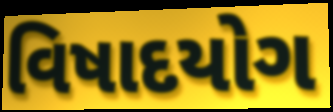
વિષાદયોગ